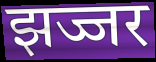
झज्जर